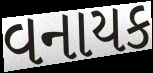
વનાયક